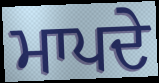
ਮਾਪਦੇ